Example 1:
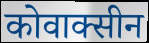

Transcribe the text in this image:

कोवाक्सीन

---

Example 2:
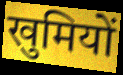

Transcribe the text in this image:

खुमियों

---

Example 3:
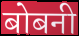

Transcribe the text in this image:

बोबनी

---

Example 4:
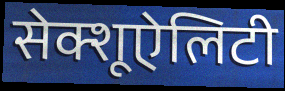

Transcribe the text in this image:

सेक्शूऐलिटी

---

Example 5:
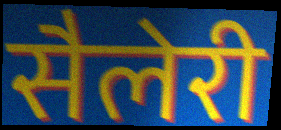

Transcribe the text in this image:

सैलेरी